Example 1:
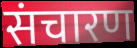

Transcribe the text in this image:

संचारण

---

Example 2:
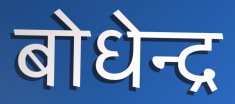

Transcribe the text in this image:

बोधेन्द्र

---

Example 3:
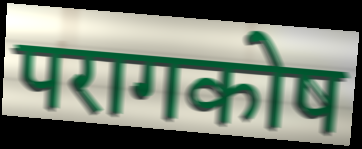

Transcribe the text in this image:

परागकोष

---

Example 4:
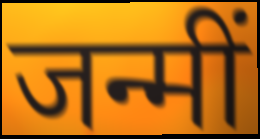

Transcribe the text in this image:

जन्मीं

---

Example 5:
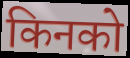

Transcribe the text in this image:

किनको